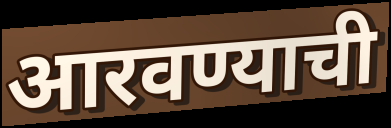
आरवण्याची